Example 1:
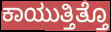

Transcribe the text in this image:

ಕಾಯುತ್ತಿತ್ತೊ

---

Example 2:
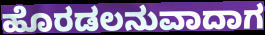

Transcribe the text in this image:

ಹೊರಡಲನುವಾದಾಗ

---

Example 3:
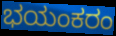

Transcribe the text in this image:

ಭಯಂಕರಂ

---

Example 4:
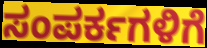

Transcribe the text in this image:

ಸಂಪರ್ಕಗಳಿಗೆ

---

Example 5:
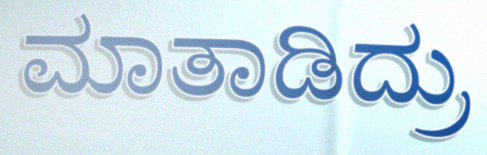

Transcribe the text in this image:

ಮಾತಾಡಿದ್ರು